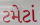
ટમેટાં